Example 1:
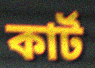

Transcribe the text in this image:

কাৰ্ট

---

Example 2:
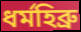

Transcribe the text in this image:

ধৰ্মহিব্ৰু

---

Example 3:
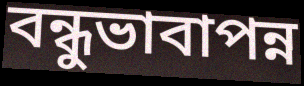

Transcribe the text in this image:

বন্ধুভাবাপন্ন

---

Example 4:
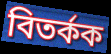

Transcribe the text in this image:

বিতৰ্কক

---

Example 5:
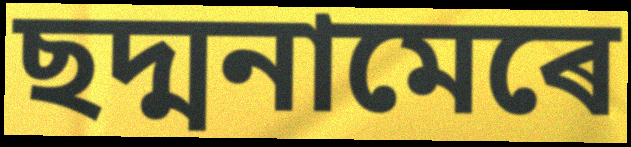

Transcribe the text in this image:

ছদ্মনামেৰে